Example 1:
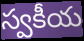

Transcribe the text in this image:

స్వకీయ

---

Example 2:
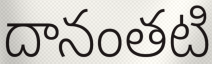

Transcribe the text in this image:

దానంతటి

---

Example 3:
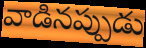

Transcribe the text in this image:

వాడినప్పుడు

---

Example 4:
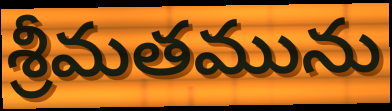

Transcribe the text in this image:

శ్రీమతమును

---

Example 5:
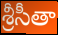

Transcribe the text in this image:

శ్రీసీతా